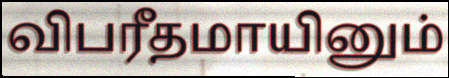
விபரீதமாயினும்